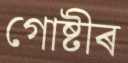
গোষ্টীৰ